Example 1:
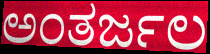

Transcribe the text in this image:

ಅಂತರ್ಜಲ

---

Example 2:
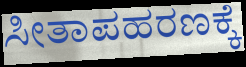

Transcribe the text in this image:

ಸೀತಾಪಹರಣಕ್ಕೆ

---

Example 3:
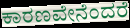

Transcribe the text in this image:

ಕಾರಣವೇನೆಂದರೆ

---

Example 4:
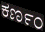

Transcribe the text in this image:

ಕರ್ಣಂ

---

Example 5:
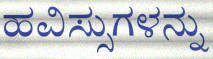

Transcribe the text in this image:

ಹವಿಸ್ಸುಗಳನ್ನು